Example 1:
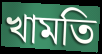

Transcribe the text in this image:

খামতি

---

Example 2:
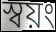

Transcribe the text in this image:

স্বয়ং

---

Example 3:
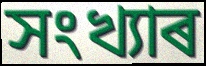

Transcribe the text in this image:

সংখ্যাৰ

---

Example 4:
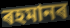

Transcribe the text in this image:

ৰহমানৰ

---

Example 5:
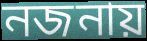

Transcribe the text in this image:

নজনায়